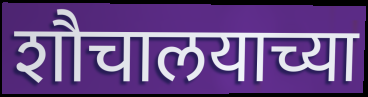
शौचालयाच्या